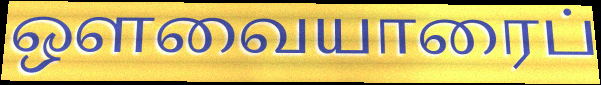
ஔவையாரைப்